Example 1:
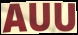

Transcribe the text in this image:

AUU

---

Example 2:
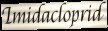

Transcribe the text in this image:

Imidacloprid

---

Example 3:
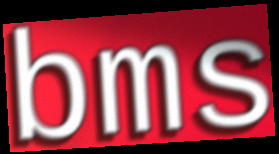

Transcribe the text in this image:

bms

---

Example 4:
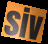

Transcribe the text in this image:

siv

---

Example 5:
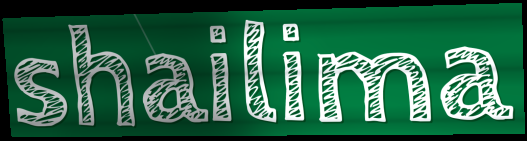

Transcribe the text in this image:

shailima